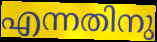
എന്നതിനു